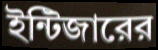
ইন্টিজারের